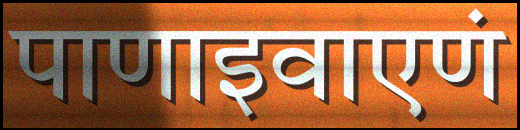
पाणाइवाएणं